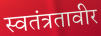
स्वतंत्रतावीर